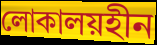
লোকালয়হীন